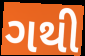
ગથી